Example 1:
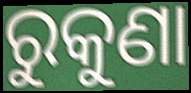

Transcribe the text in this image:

ରୁକୁଣା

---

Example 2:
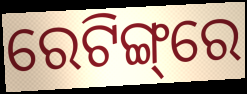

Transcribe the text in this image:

ରେଟିଙ୍ଗ୍‌ରେ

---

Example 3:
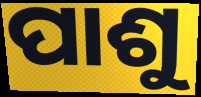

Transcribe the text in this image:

ପାଶୁ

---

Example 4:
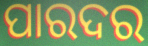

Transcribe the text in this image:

ପାରଦର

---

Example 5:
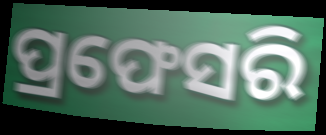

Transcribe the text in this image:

ପ୍ରଫେସରି